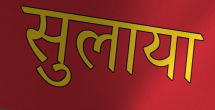
सुलाया